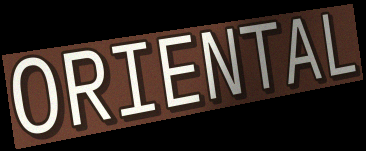
ORIENTAL